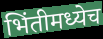
भिंतीमध्येच